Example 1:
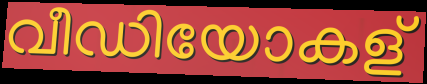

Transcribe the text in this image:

വീഡിയോകള്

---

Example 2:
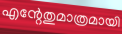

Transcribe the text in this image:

എന്റേതുമാത്രമായി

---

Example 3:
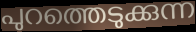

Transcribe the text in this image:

പുറത്തെടുക്കുന്ന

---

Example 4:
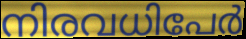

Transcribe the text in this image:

നിരവധിപേർ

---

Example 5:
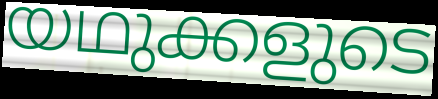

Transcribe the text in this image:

യഥുക്കളുടെ